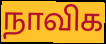
நாவிக